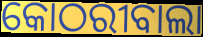
କୋଠରୀବାଲା